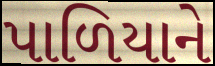
પાળિયાને